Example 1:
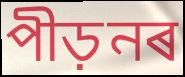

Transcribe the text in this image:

পীড়নৰ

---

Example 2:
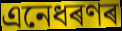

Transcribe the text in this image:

এনেধৰণৰ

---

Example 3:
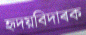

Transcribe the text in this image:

হৃদয়বিদাৰক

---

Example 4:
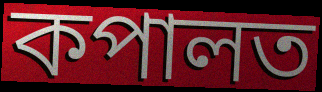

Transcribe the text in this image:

কপালত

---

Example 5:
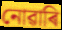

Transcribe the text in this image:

নোৱাৰি